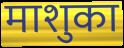
माशुका